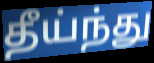
தீய்ந்து